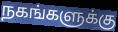
நகங்களுக்கு